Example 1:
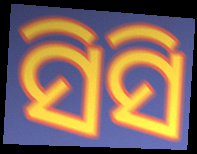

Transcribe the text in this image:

ସିସି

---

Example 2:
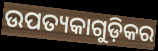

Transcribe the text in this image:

ଉପତ୍ୟକାଗୁଡ଼ିକର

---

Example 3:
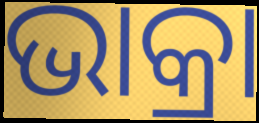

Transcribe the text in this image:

ଭାକ୍ରା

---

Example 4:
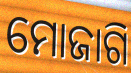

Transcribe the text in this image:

ମୋଜାଗି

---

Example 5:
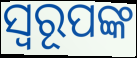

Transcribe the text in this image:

ସ୍ୱରୂପଙ୍କ